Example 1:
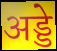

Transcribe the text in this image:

अड्डे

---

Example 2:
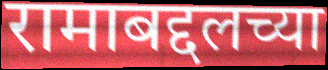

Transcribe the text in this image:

रामाबद्दलच्या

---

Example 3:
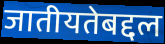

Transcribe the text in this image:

जातीयतेबद्दल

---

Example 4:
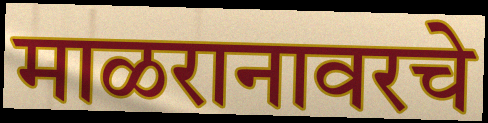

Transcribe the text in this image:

माळरानावरचे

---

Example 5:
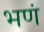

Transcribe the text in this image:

भणं